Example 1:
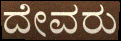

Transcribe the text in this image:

ದೇವರು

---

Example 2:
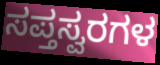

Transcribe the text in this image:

ಸಪ್ತಸ್ವರಗಳ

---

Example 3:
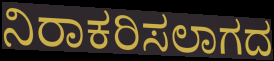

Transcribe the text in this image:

ನಿರಾಕರಿಸಲಾಗದ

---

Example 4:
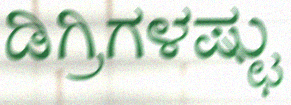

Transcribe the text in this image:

ಡಿಗ್ರಿಗಳಷ್ಟು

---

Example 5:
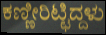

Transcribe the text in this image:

ಕಣ್ಣೀರಿಟ್ಟಿದ್ದಳು